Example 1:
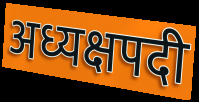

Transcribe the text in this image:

अध्यक्षपदी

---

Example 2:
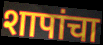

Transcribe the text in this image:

शापांचा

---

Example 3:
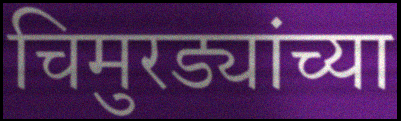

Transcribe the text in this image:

चिमुरड्यांच्या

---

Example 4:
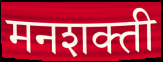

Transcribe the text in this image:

मनशक्ती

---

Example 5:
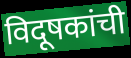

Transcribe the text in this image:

विदूषकांची